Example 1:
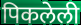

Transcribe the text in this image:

पिकलेली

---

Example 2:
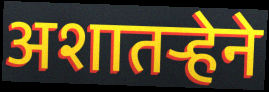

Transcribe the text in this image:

अशातऱ्हेने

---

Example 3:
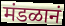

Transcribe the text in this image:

मंडळानं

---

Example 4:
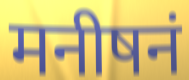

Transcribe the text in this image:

मनीषनं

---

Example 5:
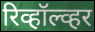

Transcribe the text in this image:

रिव्हॉल्व्हर